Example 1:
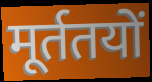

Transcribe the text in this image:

मूर्ततयों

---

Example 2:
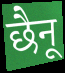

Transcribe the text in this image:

छैनू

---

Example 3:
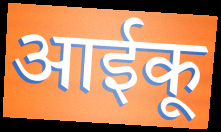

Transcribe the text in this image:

आईकू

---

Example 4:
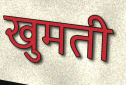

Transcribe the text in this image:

खुमती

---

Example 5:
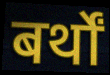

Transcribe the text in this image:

बर्थों